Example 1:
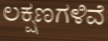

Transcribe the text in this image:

ಲಕ್ಷಣಗಳಿವೆ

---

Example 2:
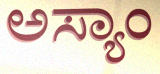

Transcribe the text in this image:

ಅಸ್ಯಾಂ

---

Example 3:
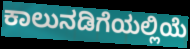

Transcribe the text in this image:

ಕಾಲುನಡಿಗೆಯಲ್ಲಿಯೆ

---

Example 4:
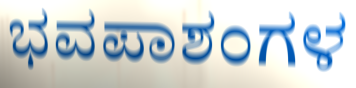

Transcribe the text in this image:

ಭವಪಾಶಂಗಳ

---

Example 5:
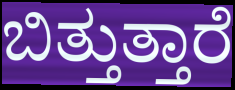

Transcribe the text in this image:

ಬಿತ್ತುತ್ತಾರೆ